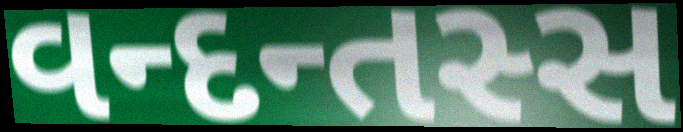
વન્દન્તસ્સ